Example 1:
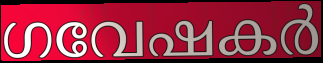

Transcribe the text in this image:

ഗവേഷകർ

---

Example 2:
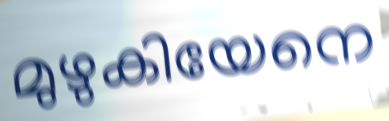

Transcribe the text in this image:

മുഴുകിയേനെ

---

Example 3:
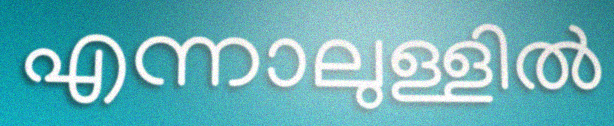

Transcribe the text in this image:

എന്നാലുള്ളിൽ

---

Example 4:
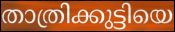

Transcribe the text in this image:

താത്രിക്കുട്ടിയെ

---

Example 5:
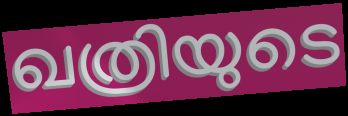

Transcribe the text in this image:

ഖത്രിയുടെ